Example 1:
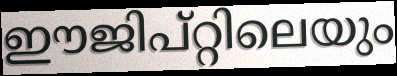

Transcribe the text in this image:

ഈജിപ്റ്റിലെയും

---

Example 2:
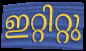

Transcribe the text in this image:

ഇറ്റിറ്റു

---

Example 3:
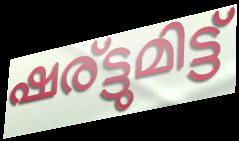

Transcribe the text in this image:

ഷര്ട്ടുമിട്ട്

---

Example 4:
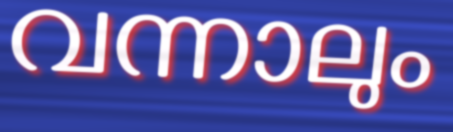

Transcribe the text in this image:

വന്നാലും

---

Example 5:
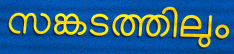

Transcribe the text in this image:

സങ്കടത്തിലും